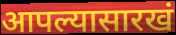
आपल्यासारखं